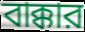
বাক্কার